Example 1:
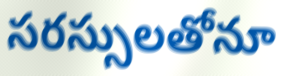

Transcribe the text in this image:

సరస్సులతోనూ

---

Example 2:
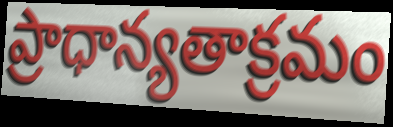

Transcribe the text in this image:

ప్రాధాన్యతాక్రమం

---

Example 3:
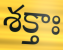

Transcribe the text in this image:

శక్తాః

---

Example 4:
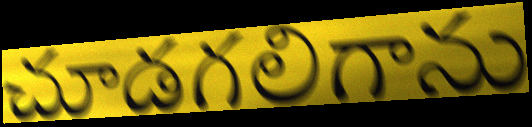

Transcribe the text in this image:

చూడగలిగాను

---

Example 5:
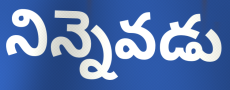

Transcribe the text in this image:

నిన్నెవడు